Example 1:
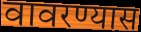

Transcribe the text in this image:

वावरण्यास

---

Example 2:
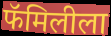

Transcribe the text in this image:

फॅमिलीला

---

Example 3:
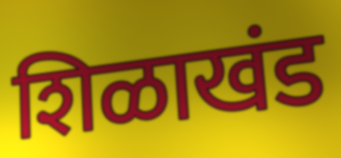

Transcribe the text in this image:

शिळाखंड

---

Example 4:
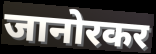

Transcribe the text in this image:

जानोरकर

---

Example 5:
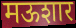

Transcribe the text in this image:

मऊशार